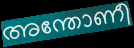
അന്തോണീ